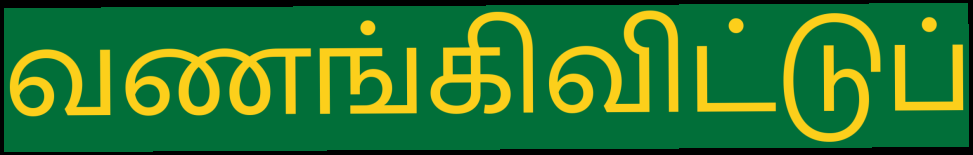
வணங்கிவிட்டுப்